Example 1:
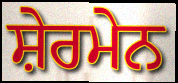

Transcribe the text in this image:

ਸ਼ੇਰਮੇਨ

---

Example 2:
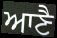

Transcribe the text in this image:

ਆਣੈ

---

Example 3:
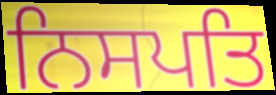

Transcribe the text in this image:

ਨਿਸਪਤਿ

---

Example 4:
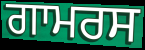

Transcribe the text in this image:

ਗਾਮਰਸ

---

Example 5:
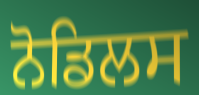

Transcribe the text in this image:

ਨੋਡਿਲਸ